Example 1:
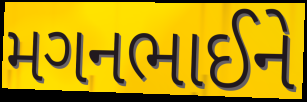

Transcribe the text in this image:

મગનભાઈને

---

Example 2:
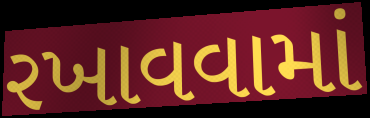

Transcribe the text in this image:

રખાવવામાં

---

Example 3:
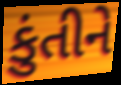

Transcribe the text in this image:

કુંતીને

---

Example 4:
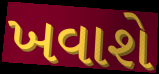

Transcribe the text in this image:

ખવાશે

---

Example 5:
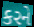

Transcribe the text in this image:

કરને